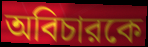
অবিচারকে